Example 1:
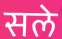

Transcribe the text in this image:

सले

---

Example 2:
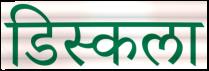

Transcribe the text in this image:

डिस्कला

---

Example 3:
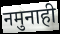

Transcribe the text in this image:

नमुनाही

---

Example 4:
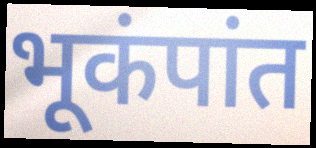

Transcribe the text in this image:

भूकंपांत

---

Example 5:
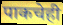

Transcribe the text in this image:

पाकचेही